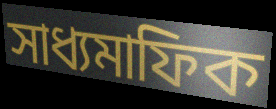
সাধ্যমাফিক